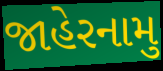
જાહેરનામુ